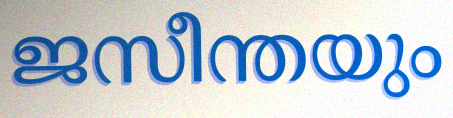
ജസീന്തയും